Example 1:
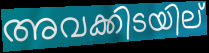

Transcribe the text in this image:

അവക്കിടയില്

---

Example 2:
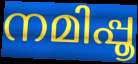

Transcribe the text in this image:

നമിപ്പൂ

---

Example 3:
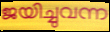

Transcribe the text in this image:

ജയിച്ചുവന്ന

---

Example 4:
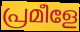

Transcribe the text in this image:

പ്രമീളേ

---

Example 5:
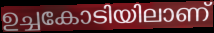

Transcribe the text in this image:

ഉച്ചകോടിയിലാണ്